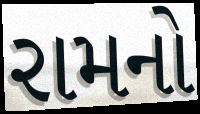
રામનો